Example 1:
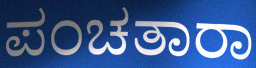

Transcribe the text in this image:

ಪಂಚತಾರಾ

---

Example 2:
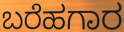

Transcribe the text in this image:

ಬರೆಹಗಾರ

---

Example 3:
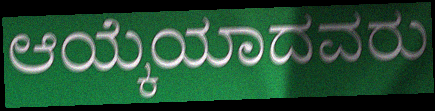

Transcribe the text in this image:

ಆಯ್ಕೆಯಾದವರು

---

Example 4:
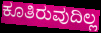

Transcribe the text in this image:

ಕೂತಿರುವುದಿಲ್ಲ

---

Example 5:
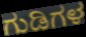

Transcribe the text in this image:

ಗುಡಿಗಳ